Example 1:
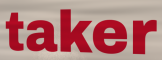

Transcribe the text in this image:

taker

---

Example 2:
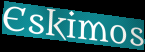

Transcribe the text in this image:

Eskimos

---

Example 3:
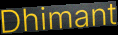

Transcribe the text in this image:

Dhimant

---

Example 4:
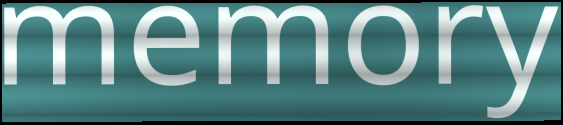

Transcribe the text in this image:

memory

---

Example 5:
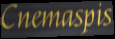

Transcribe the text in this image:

Cnemaspis